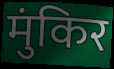
मुंकिर